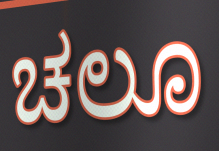
ಚಲೂ